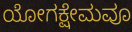
ಯೋಗಕ್ಷೇಮವೂ